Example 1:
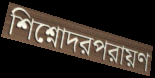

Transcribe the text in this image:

শিশ্নোদরপরায়ণ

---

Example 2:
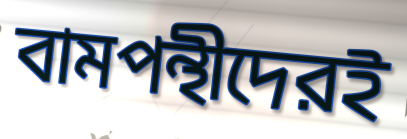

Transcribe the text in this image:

বামপন্থীদেরই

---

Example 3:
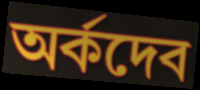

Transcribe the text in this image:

অর্কদেব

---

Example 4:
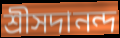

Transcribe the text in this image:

শ্রীসদানন্দ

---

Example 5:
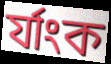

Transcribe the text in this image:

র্যাংক